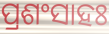
ପ୍ରଶଂସାହଃ